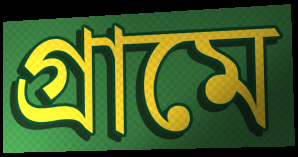
গ্রামে